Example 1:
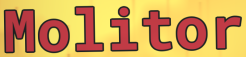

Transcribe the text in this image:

Molitor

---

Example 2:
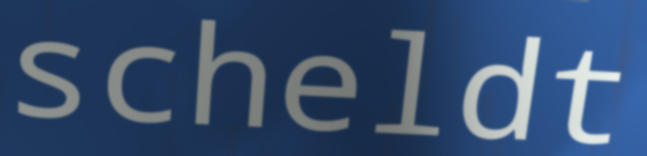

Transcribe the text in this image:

scheldt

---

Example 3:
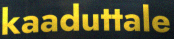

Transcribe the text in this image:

kaaduttale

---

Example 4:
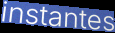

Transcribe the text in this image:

instantes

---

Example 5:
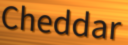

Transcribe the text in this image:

Cheddar